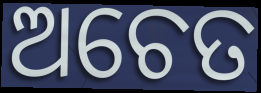
ଅଚେତ